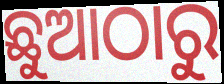
ଛୁଆଠାରୁ